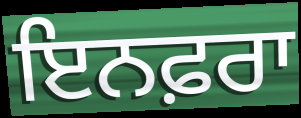
ਇਨਫ਼ਰਾ